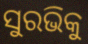
ସୁରଭିକୁ